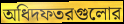
অধিদফতরগুলোর